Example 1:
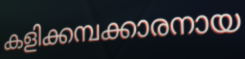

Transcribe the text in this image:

കളിക്കമ്പക്കാരനായ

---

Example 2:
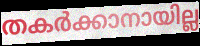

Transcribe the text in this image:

തകർക്കാനായില്ല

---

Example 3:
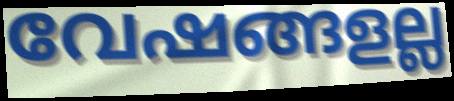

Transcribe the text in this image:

വേഷങ്ങളല്ല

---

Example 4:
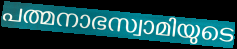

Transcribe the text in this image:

പത്മനാഭസ്വാമിയുടെ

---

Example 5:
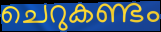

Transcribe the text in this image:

ചെറുകണ്ടം